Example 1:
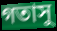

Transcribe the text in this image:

গতাসু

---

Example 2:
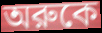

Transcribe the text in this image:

অরুকে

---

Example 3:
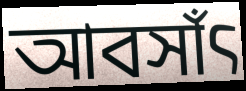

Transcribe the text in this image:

আবসাঁৎ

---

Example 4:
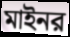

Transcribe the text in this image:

মাইনর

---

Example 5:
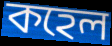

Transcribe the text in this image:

কহেল